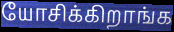
யோசிக்கிறாங்க